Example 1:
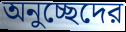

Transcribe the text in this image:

অনুচ্ছেদের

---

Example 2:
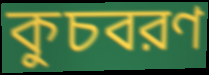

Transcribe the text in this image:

কুচবরণ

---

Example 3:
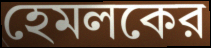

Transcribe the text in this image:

হেমলকের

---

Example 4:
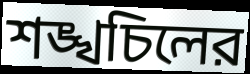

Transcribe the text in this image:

শঙ্খচিলের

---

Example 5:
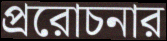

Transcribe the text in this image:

প্ররোচনার